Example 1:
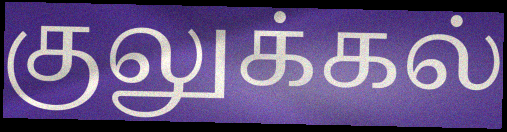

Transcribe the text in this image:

குலுக்கல்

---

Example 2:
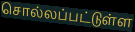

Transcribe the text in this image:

சொல்லப்பட்டுள்ள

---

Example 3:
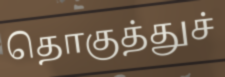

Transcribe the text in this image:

தொகுத்துச்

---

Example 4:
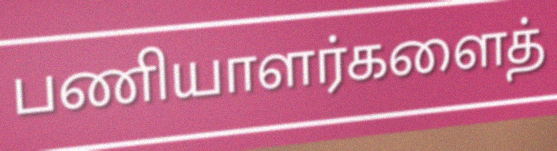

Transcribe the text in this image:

பணியாளர்களைத்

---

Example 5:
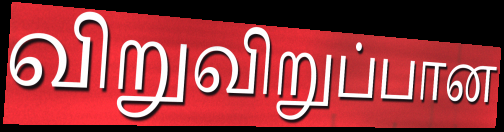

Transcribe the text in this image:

விறுவிறுப்பான